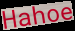
Hahoe